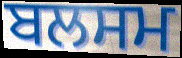
ਬਲਸਮ